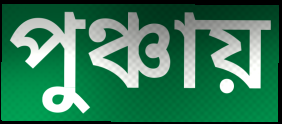
পুঞ্চায়